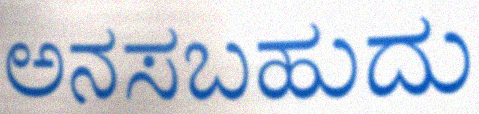
ಅನಸಬಹುದು